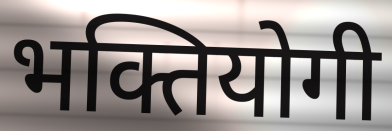
भक्तियोगी